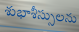
శుభాశీస్సులను